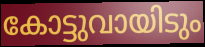
കോട്ടുവായിടും